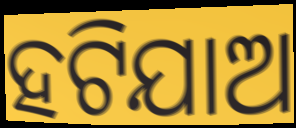
ହଟିଯାଅ